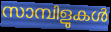
സാമ്പിളുകൾ